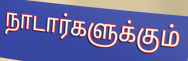
நாடார்களுக்கும்